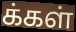
க்கள்